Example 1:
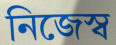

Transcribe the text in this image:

নিজেস্ব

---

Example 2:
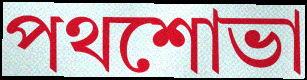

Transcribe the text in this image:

পথশোভা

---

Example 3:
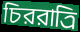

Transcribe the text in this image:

চিররাত্রি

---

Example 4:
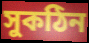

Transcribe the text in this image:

সুকঠিন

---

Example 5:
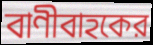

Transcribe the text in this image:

বাণীবাহকের